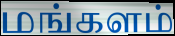
மங்களம்